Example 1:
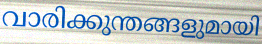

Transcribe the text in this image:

വാരിക്കുന്തങ്ങളുമായി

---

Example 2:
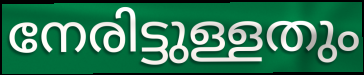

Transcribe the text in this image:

നേരിട്ടുള്ളതും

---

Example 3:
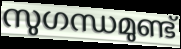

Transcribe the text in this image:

സുഗന്ധമുണ്ട്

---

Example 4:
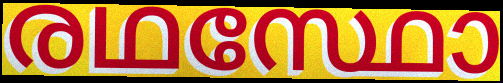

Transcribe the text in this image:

രഥസ്ഥോ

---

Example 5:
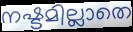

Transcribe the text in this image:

നഷ്ടമില്ലാതെ